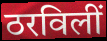
ठरविलीं